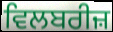
ਵਿਲਬਰੀਜ਼